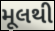
મૂલથી